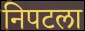
निपटला